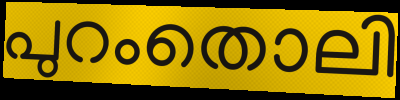
പുറംതൊലി